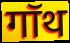
गॉथ